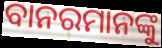
ବାନରମାନଙ୍କୁ